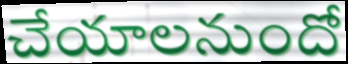
చేయాలనుందో